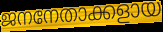
ജനനേതാക്കളായ